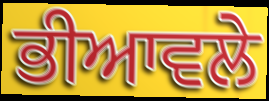
ਭੀਆਵਲੇ